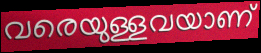
വരെയുള്ളവയാണ്